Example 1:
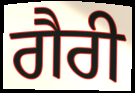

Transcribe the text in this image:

ਗੈਰੀ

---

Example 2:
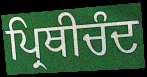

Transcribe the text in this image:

ਪ੍ਰਿਥੀਚੰਦ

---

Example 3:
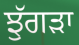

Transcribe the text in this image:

ਝੁੱਗੜਾ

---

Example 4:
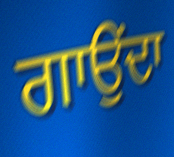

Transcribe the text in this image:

ਗਾਉਂਦਾ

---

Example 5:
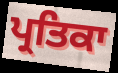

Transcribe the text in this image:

ਪ੍ਰਤਿਕਾ